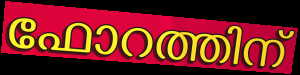
ഫോറത്തിന്